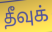
தீவுக்